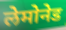
लेमोनेड